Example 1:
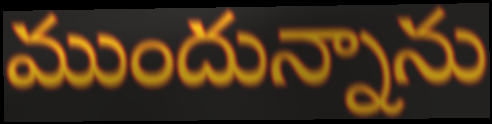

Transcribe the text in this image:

ముందున్నాను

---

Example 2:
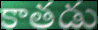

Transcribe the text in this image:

కాతడు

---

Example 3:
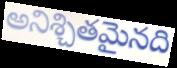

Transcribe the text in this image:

అనిశ్చితమైనది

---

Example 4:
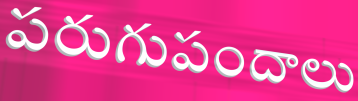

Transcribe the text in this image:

పరుగుపందాలు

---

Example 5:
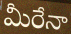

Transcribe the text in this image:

మీరేనా